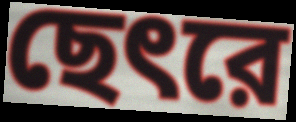
ছেৎরে